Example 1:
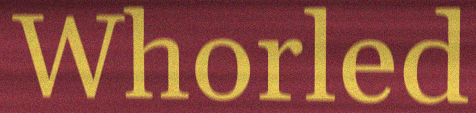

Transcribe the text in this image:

Whorled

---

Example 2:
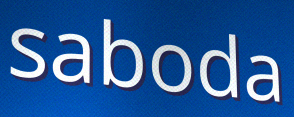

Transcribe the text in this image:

saboda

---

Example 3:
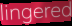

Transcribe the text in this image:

lingered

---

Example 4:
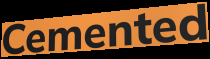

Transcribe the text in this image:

Cemented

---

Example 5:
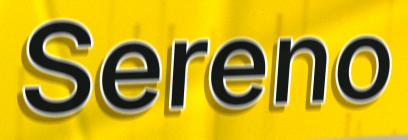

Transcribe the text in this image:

Sereno